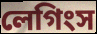
লেগিংস